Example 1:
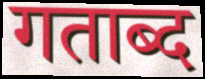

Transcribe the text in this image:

गताब्द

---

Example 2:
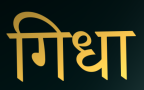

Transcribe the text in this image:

गिधा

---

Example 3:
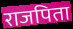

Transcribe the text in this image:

राजपिता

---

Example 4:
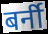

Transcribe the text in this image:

बर्नी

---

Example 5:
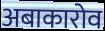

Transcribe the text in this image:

अबाकारोव